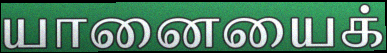
யானையைக்